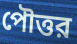
পৌত্তর